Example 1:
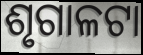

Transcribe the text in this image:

ଶୃଗାଳଟା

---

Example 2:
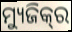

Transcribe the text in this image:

ମ୍ୟୁଜିକ୍‌ର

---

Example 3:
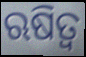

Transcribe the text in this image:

ଋଷିତ୍ୱ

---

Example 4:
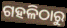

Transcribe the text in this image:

ଗହଳିଠାରୁ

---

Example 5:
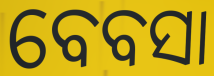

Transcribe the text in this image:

ବେବସା